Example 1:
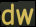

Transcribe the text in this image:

dw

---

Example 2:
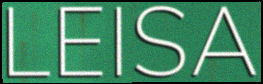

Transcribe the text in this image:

LEISA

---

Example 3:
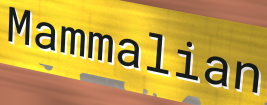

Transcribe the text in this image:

Mammalian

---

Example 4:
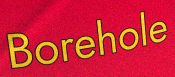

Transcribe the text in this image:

Borehole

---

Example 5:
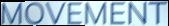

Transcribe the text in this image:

MOVEMENT